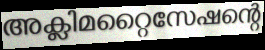
അക്ലിമറ്റൈസേഷന്റെ